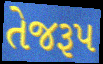
તેજરૂપ